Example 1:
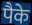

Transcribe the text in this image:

पैके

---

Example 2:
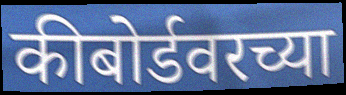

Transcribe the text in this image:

कीबोर्डवरच्या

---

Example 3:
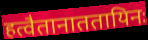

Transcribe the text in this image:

हत्वैतानाततायिनः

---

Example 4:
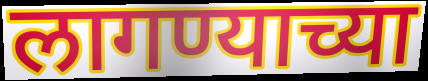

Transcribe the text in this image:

लागण्याच्या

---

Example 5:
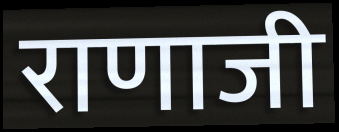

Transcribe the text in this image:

राणाजी